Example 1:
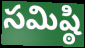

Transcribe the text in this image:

సమిష్ఠి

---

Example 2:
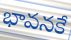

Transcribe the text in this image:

భావనకే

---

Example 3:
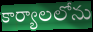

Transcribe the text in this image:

కార్యాలలోను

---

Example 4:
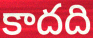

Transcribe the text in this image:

కాదది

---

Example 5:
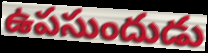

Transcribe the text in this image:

ఉపసుందుడు